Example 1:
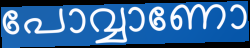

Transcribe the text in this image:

പോവ്വാണോ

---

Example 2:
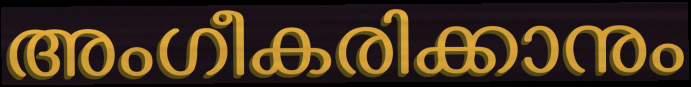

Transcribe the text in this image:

അംഗീകരിക്കാനും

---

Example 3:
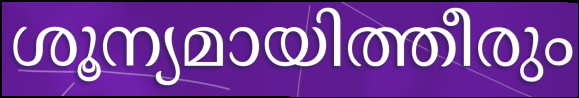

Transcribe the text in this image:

ശൂന്യമായിത്തീരും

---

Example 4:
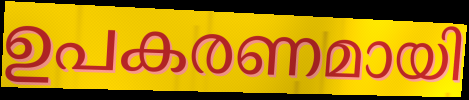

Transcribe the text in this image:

ഉപകരണമായി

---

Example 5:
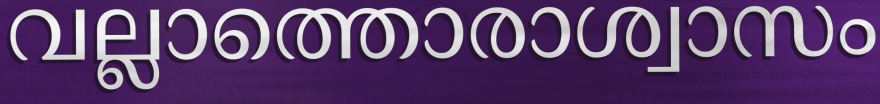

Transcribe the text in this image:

വല്ലാത്തൊരാശ്വാസം